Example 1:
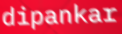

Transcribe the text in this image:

dipankar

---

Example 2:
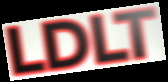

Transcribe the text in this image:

LDLT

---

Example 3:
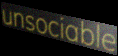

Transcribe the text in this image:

unsociable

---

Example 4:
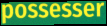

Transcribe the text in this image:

possesser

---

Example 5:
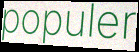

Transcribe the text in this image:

populer